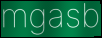
mgasb